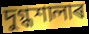
দুগ্ধশালাৰ